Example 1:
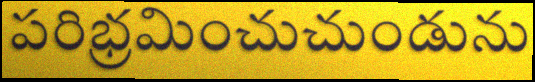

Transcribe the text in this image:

పరిభ్రమించుచుండును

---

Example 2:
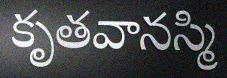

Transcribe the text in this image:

కృతవానస్మి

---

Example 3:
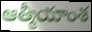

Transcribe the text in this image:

ఆత్మీయాంశ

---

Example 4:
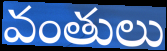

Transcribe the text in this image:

వంతులు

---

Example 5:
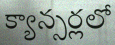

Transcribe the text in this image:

క్యాన్సర్లలో